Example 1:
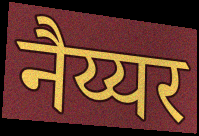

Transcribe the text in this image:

नैय्यर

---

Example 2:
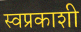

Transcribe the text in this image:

स्वप्रकाशी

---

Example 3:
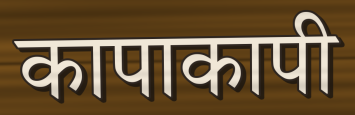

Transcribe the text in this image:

कापाकापी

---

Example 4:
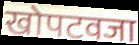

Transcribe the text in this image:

खोपटवजा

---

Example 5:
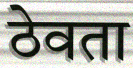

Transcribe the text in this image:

ठेवता